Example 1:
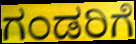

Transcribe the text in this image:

ಗಂಡರಿಗೆ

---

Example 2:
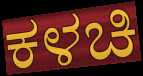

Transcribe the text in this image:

ಕಳಚಿ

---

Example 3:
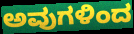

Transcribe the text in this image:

ಅವುಗಳಿಂದ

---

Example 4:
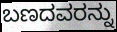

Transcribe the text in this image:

ಬಣದವರನ್ನು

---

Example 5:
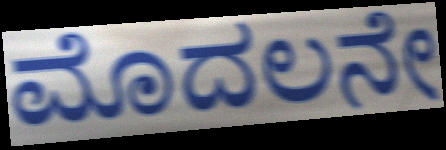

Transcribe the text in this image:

ಮೊದಲನೇ